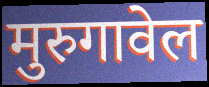
मुरुगावेल